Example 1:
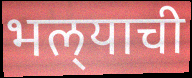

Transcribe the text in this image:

भल्याची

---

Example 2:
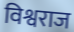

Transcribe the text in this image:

विश्वराज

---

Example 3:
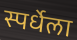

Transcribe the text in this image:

स्पर्धेला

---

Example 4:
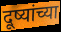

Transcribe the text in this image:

दूष्यांच्या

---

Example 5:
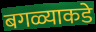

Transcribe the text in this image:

बगळ्याकडे